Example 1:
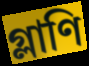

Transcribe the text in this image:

গ্লাণি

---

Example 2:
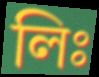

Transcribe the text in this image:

লিঃ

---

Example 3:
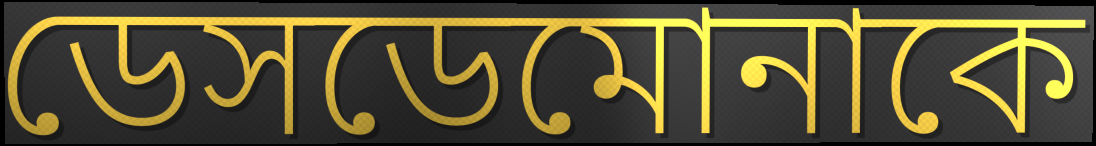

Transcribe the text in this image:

ডেসডেমোনাকে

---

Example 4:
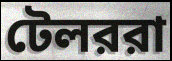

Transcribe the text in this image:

টেলররা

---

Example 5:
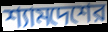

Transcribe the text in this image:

শ্যামদেশের